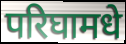
परिघामधे